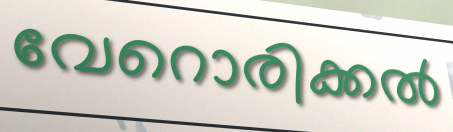
വേറൊരിക്കൽ